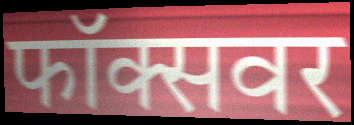
फॉक्सवर